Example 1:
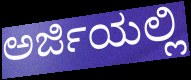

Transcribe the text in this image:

ಅರ್ಜಿಯಲ್ಲಿ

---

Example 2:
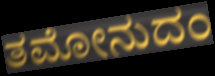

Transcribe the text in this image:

ತಮೋನುದಂ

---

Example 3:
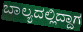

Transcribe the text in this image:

ಬಾಲ್ಯದಲ್ಲಿದ್ದಾಗ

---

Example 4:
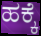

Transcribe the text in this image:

ಹಕ್ಕೆ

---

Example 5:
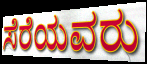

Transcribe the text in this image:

ಸೆರೆಯವರು